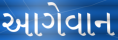
આગેવાન